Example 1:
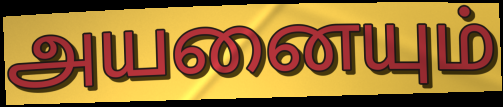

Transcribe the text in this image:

அயனையும்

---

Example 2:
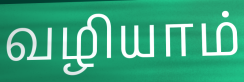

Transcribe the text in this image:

வழியாம்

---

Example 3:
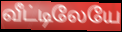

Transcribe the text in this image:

வீட்டிலேயே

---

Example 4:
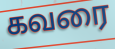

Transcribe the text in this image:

கவரை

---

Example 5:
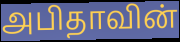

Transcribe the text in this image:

அபிதாவின்